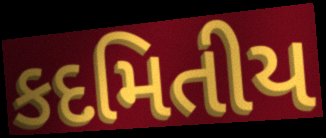
કદમિતીય